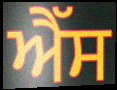
ਐੱਸ